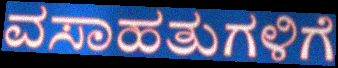
ವಸಾಹತುಗಳಿಗೆ